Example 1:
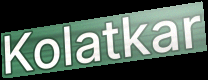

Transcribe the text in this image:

Kolatkar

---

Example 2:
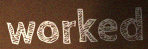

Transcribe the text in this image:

worked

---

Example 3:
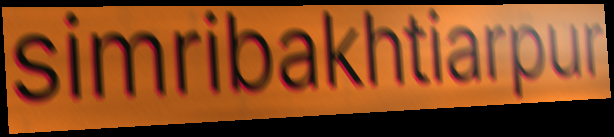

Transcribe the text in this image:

simribakhtiarpur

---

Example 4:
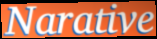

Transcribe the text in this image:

Narative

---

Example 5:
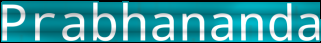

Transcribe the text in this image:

Prabhananda